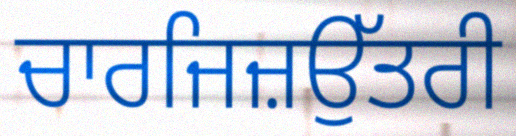
ਚਾਰਜਿਜ਼ਉੱਤਰੀ